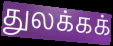
துலக்கக்